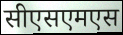
सीएसएमएस